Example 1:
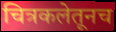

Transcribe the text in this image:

चित्रकलेतूनच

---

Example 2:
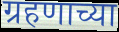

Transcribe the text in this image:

ग्रहणाच्या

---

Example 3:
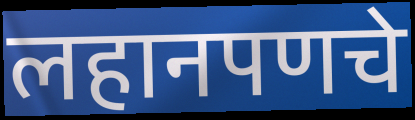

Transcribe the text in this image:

लहानपणचे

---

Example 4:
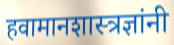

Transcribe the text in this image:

हवामानशास्त्रज्ञांनी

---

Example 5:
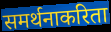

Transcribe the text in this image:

समर्थनाकरिता